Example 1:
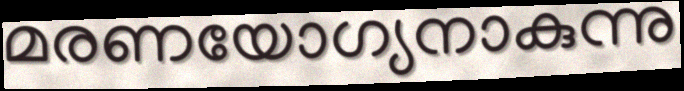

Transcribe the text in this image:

മരണയോഗ്യനാകുന്നു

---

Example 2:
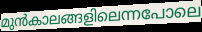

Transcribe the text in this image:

മുൻകാലങ്ങളിലെന്നപോലെ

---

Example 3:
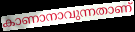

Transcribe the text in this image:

കാണാനാവുന്നതാണ്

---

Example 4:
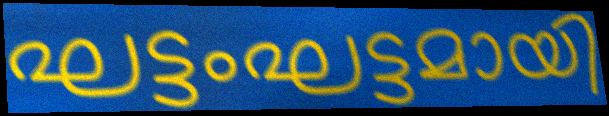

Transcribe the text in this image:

ഘട്ടംഘട്ടമായി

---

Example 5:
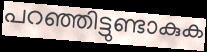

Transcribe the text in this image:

പറഞ്ഞിട്ടുണ്ടാകുക